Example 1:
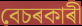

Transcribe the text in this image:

বেচৰকাৰী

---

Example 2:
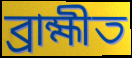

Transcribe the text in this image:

ব্ৰাহ্মীত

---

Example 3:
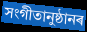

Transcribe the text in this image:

সংগীতানুষ্ঠানৰ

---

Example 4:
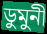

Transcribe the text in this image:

ডুমুনী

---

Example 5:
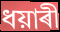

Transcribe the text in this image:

ধয়াৰী